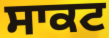
ਸਾਕਟ